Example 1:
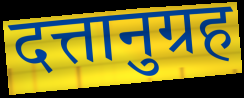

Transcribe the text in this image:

दत्तानुग्रह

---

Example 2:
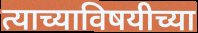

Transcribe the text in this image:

त्याच्याविषयीच्या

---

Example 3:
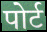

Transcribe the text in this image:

पोर्ट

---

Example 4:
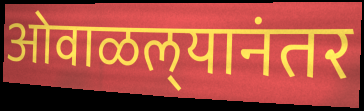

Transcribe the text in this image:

ओवाळल्यानंतर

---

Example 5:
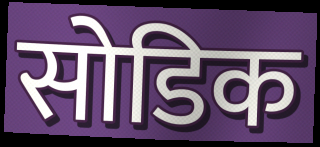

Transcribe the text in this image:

सोडिक